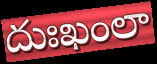
దుఃఖంలా